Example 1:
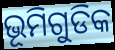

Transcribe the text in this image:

ଭୂମିଗୁଡିକ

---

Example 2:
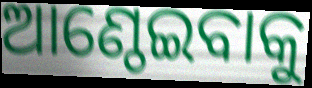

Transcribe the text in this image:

ଆଣ୍ଠେଇବାକୁ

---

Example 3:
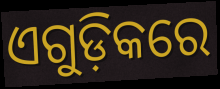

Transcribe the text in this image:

ଏଗୁଡ଼ିକରେ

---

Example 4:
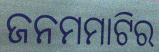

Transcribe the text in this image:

ଜନମମାଟିର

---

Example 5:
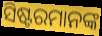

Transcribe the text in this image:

ସିଷ୍ଟରମାନଙ୍କ